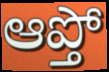
ఆప్తో